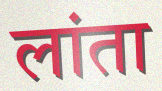
लांता